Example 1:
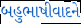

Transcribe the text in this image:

બહુભાષીવાદને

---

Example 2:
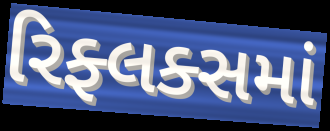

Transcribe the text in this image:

રિફ્લક્સમાં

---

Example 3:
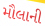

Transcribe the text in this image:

મૌલાની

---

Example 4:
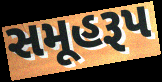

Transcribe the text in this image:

સમૂહરૂપ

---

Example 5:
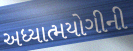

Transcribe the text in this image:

અધ્યાત્મયોગીની